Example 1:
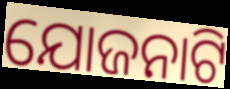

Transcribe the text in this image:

ଯୋଜନାଟି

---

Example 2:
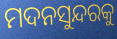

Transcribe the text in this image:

ମଦନସୁନ୍ଦରକୁ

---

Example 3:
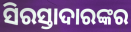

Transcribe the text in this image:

ସିରସ୍ତାଦାରଙ୍କର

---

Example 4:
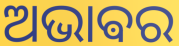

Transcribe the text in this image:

ଅଭାଵର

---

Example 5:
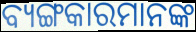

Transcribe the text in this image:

ବ୍ୟଙ୍ଗକାରମାନଙ୍କ